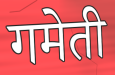
गमेती